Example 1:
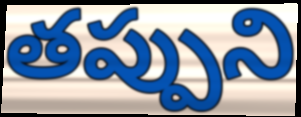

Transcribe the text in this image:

తప్పుని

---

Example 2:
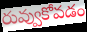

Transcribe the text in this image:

రువ్వుకోవడం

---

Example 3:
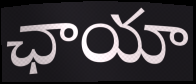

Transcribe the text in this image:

ఛాయా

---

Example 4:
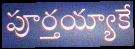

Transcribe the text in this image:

పూర్తయ్యాకే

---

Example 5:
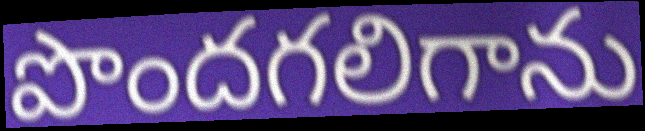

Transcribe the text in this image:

పొందగలిగాను